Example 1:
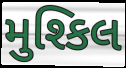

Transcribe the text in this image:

મુશ્કિલ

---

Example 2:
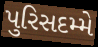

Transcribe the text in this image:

પુરિસદમ્મે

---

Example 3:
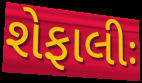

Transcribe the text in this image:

શેફાલીઃ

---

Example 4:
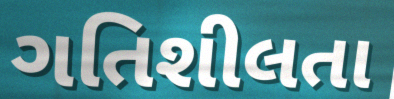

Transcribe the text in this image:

ગતિશીલતા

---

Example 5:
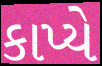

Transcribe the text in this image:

કાપ્યે